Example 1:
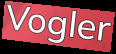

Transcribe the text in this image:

Vogler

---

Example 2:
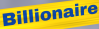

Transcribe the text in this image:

Billionaire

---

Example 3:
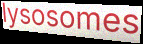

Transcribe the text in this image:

lysosomes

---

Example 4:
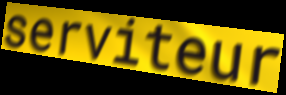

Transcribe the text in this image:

serviteur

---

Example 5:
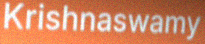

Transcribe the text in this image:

Krishnaswamy